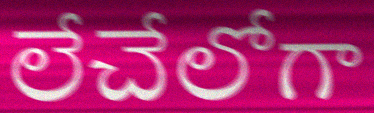
లేచేలోగా